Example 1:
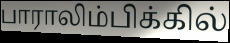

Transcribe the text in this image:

பாராலிம்பிக்கில்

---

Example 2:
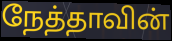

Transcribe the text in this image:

நேத்தாவின்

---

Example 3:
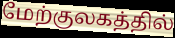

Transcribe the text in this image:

மேற்குலகத்தில்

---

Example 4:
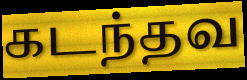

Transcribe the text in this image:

கடந்தவ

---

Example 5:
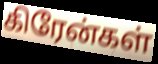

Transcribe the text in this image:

கிரேன்கள்